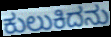
ಕುಲುಕಿದನು